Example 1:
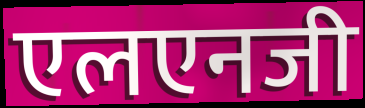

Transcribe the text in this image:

एलएनजी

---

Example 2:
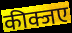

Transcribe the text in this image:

कीक्जए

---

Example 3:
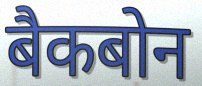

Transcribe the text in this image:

बैकबोन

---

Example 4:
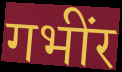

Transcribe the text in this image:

गभींर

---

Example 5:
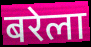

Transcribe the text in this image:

बरेला